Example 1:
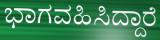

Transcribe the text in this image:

ಭಾಗವಹಿಸಿದ್ದಾರೆ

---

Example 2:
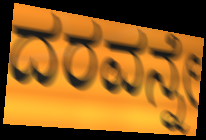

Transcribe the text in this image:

ದರವನ್ನೇ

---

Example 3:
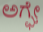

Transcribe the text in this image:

ಅಗ್ಘೇ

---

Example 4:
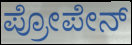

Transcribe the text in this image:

ಪ್ರೋಪೇನ್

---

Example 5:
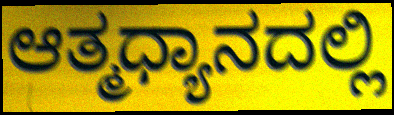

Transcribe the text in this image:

ಆತ್ಮಧ್ಯಾನದಲ್ಲಿ